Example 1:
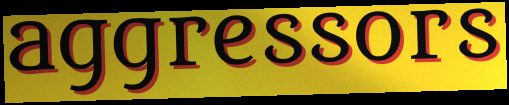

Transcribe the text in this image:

aggressors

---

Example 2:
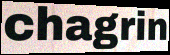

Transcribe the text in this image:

chagrin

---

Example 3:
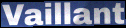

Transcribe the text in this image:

Vaillant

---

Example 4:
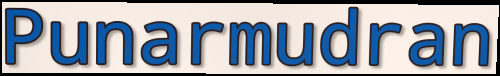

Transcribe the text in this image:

Punarmudran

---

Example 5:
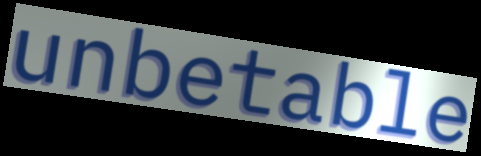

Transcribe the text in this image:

unbetable